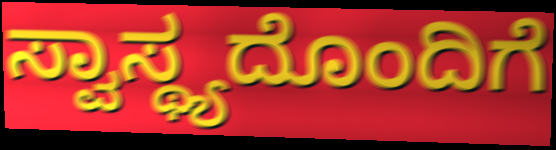
ಸ್ವಾಸ್ಥ್ಯದೊಂದಿಗೆ